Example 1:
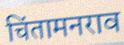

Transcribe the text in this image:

चिंतामनराव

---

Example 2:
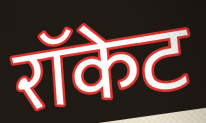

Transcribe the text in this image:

रॉकेट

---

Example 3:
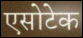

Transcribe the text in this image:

एसोटेक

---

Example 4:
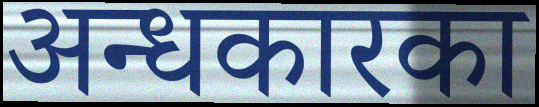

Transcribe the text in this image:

अन्धकारका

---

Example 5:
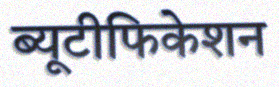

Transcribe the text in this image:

ब्यूटीफिकेशन